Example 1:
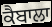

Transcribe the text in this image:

ਕੈਬਾਲਾ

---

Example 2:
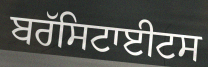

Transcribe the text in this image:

ਬਰੱਸਿਟਾਈਟਸ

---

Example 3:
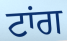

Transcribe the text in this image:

ਟਾਂਗ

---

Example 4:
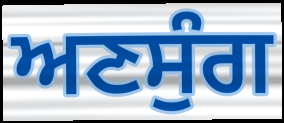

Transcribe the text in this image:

ਅਣਸੁੰਗ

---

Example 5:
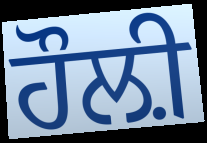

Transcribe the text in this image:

ਹੌਲ਼ੀ